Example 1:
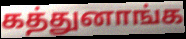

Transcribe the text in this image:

கத்துனாங்க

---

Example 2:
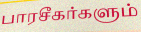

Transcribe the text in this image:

பாரசீகர்களும்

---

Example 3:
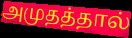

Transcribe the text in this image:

அமுதத்தால்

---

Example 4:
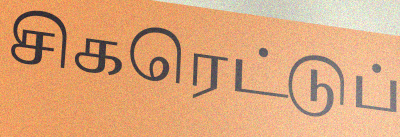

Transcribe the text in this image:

சிகரெட்டுப்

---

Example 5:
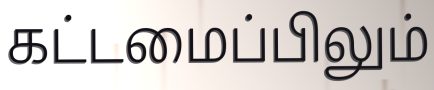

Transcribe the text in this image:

கட்டமைப்பிலும்